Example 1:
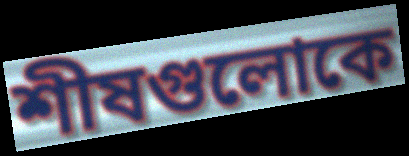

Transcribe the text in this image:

শীষগুলোকে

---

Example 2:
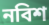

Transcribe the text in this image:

নবিশ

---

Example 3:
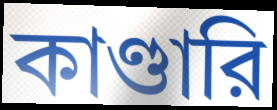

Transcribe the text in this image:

কাণ্ডারি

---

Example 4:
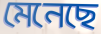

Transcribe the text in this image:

মেনেছে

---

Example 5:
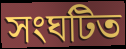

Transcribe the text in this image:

সংঘটিত